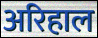
अरिहाल